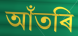
আঁতৰি